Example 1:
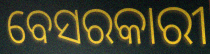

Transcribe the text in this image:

ବେସରକାରୀ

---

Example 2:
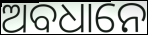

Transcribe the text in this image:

ଅବଧାନେ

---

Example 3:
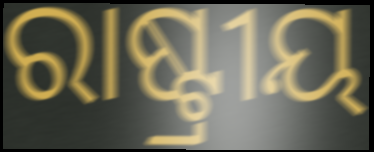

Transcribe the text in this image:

ରାଷ୍ଟ୍ରୀୟ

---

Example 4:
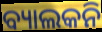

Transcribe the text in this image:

ବ୍ୟାଲକନି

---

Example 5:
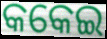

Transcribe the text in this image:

କକେଇ